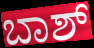
ಬಾಶ್